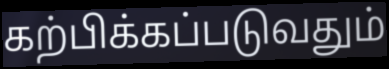
கற்பிக்கப்படுவதும்